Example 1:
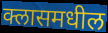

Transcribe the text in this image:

क्लासमधील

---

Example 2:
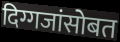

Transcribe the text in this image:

दिग्गजांसोबत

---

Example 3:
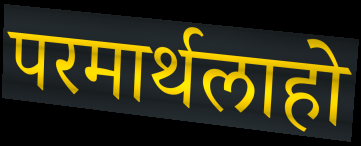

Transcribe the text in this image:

परमार्थलाहो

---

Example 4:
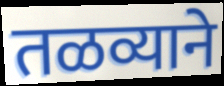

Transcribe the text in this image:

तळव्याने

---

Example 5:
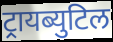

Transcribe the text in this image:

ट्रायब्युटिल